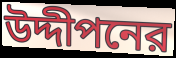
উদ্দীপনের